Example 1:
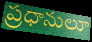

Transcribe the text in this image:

ప్రధానులూ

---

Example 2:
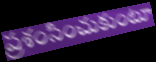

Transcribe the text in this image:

ప్రశంసించుకుంటూ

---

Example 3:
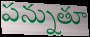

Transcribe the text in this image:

పన్నుతూ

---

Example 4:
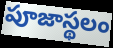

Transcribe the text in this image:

పూజాస్థలం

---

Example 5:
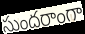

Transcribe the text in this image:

సుందరాంగా